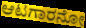
ಆಟಗಾರನೋ